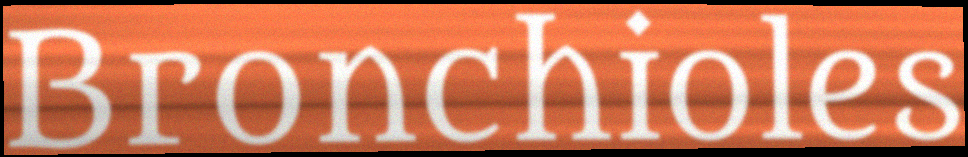
Bronchioles